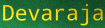
Devaraja